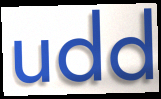
udd